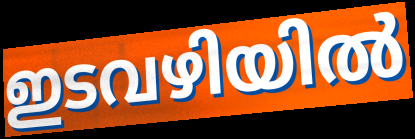
ഇടവഴിയിൽ